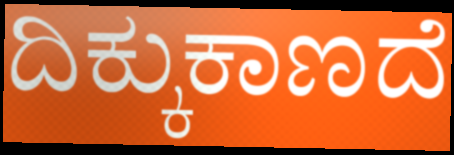
ದಿಕ್ಕುಕಾಣದೆ